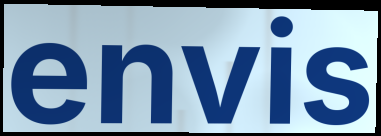
envis